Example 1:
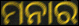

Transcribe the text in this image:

ମନାର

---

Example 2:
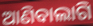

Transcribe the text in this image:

ଆଣିବାଲାଗି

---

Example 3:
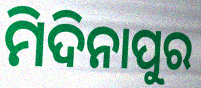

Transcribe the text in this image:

ମିଦିନାପୁର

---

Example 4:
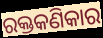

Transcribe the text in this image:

ରକ୍ତକଣିକାର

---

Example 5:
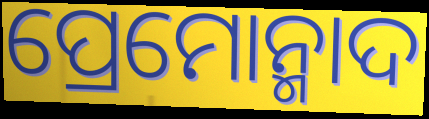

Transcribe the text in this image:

ପ୍ରେମୋନ୍ମାଦ